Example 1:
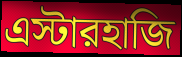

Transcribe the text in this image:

এস্টারহাজি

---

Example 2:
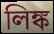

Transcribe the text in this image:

লিঙ্ক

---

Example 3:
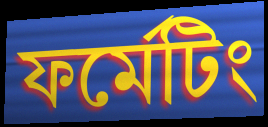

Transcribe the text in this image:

ফর্মেটিং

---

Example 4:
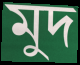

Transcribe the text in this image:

মুদ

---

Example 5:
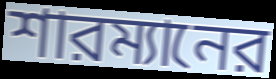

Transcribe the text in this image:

শারম্যানের